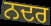
ਨਦਰ